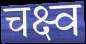
चक्ष्व